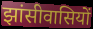
झांसीवासियों